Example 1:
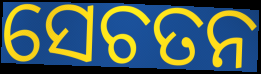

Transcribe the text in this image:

ସେଚତନ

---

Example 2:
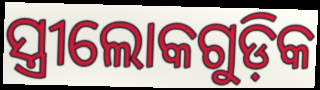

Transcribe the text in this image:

ସ୍ତ୍ରୀଲୋକଗୁଡ଼ିକ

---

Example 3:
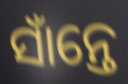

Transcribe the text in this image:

ସାଁନ୍ତେ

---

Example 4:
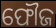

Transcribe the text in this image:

ଫୌଜ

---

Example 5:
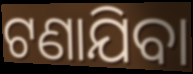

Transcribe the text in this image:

ଟଣାଯିବା